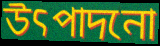
উৎপাদনো